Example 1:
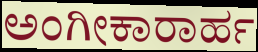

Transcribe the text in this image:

ಅಂಗೀಕಾರಾರ್ಹ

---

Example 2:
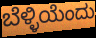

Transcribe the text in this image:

ಬೆಳ್ಳಿಯೆಂದು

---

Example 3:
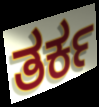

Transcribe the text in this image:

ತರ್ಕ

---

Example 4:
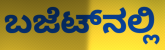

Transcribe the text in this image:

ಬಜೆಟ್‌ನಲ್ಲಿ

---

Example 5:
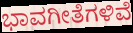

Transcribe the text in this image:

ಭಾವಗೀತೆಗಳಿವೆ